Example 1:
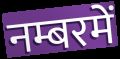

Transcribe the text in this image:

नम्बरमें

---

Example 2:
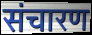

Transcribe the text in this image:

संचारण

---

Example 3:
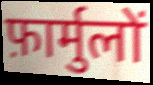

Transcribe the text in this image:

फ़ार्मुलों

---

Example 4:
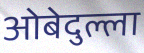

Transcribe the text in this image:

ओबेदुल्ला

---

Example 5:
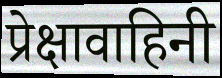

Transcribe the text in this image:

प्रेक्षावाहिनी